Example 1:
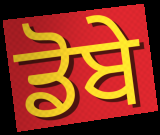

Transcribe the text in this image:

ਡੋਬੇ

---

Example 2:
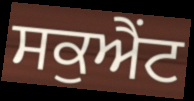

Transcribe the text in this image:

ਸਕੁਐਂਟ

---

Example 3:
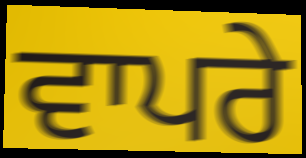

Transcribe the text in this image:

ਵਾਪਰੇ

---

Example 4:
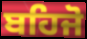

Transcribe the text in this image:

ਬਹਿਜੋ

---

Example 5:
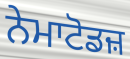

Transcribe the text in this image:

ਨੇਮਾਟੋਡਜ਼